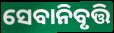
ସେବାନିବୃତ୍ତି